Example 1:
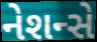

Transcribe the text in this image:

નેશન્સે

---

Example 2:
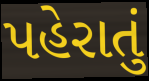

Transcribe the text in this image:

પહેરાતું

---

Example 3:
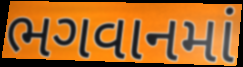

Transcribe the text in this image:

ભગવાનમાં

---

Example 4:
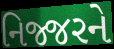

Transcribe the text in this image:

નિજ્જરને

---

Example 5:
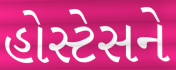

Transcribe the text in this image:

હોસ્ટેસને